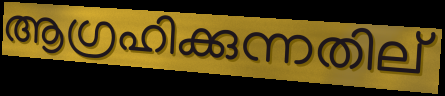
ആഗ്രഹിക്കുന്നതില്